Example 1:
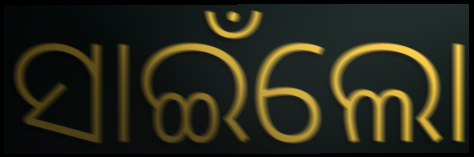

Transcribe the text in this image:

ସାଇଁଲୋ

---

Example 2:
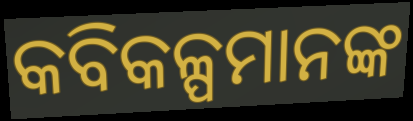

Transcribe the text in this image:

କବିକଳ୍ପମାନଙ୍କ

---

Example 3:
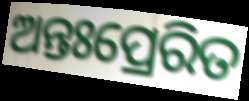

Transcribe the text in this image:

ଅନ୍ତଃପ୍ରେରିତ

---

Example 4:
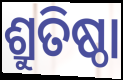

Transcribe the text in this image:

ଶ୍ରୁତିଷ୍ଠା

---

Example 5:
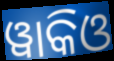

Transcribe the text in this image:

ୱାକିଓ